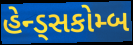
હેન્ડ્સકોમ્બ